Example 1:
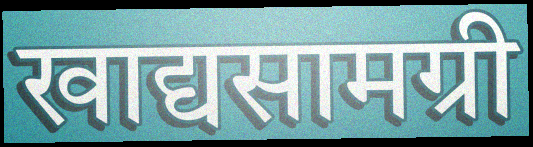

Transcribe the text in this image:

खाद्यसामग्री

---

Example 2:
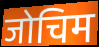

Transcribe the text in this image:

जोचिम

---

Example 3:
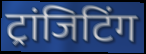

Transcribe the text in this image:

ट्रांजिटिंग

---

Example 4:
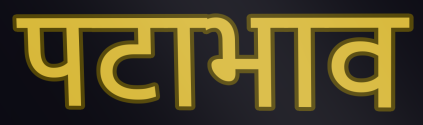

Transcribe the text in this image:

पटाभाव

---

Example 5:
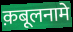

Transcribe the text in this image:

क़बूलनामे